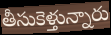
తీసుకెళ్తున్నారు